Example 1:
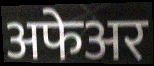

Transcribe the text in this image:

अफेअर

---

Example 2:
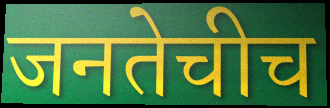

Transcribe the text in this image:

जनतेचीच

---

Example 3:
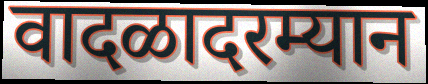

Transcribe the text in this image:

वादळादरम्यान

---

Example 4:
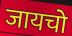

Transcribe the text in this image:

जायचो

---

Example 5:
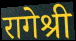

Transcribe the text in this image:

रागेश्री